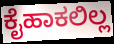
ಕೈಹಾಕಲಿಲ್ಲ